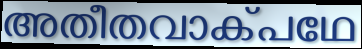
അതീതവാക്പഥേ